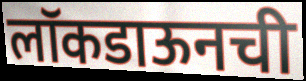
लॉकडाऊनची